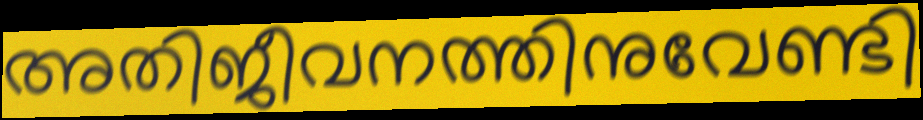
അതിജീവനത്തിനുവേണ്ടി